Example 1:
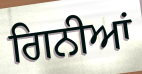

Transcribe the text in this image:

ਗਿਨੀਆਂ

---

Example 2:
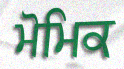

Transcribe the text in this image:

ਮੋਮਿਕ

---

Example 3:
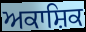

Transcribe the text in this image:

ਅਕਾਸ਼ਿਕ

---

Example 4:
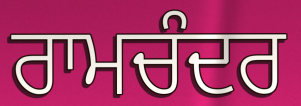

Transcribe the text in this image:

ਰਾਮਚੰਦਰ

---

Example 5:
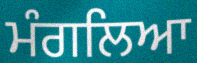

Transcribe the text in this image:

ਮੰਗਲਿਆ